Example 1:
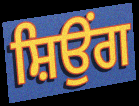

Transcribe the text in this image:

ਸ਼ਿਉਂਗ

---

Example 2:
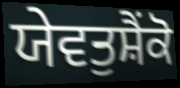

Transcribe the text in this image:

ਯੇਵਤੁਸ਼ੈਂਕੋ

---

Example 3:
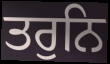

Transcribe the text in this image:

ਤਰੁਨਿ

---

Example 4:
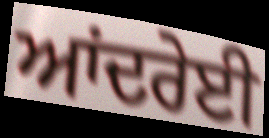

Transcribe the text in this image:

ਆਂਦਰੇਈ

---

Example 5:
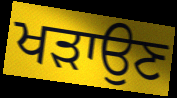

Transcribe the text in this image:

ਖੜਾਉਣ